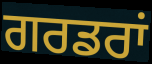
ਗਰਡਰਾਂ